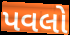
પવલો